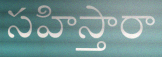
సహిస్తారా